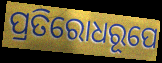
ପ୍ରତିରୋଧରୂପେ